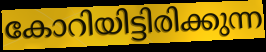
കോറിയിട്ടിരിക്കുന്ന